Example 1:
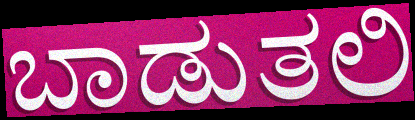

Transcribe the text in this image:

ಬಾಡುತಲಿ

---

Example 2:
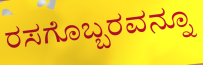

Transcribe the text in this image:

ರಸಗೊಬ್ಬರವನ್ನೂ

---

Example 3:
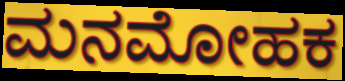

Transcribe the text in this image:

ಮನಮೋಹಕ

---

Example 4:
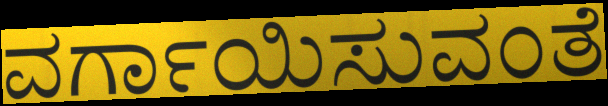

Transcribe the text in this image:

ವರ್ಗಾಯಿಸುವಂತೆ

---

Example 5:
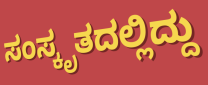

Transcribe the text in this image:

ಸಂಸ್ಕೃತದಲ್ಲಿದ್ದು